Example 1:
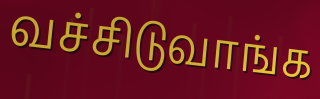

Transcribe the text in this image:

வச்சிடுவாங்க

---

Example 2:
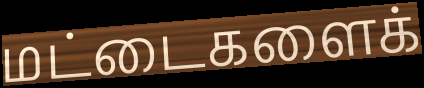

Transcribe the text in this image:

மட்டைகளைக்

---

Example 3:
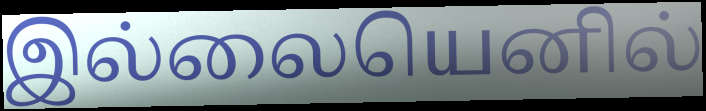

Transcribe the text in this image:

இல்லையெனில்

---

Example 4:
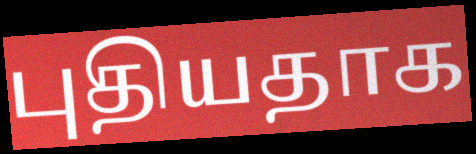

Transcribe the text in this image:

புதியதாக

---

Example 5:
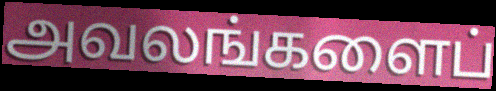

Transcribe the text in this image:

அவலங்களைப்